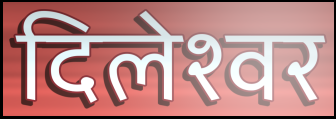
दिलेश्वर